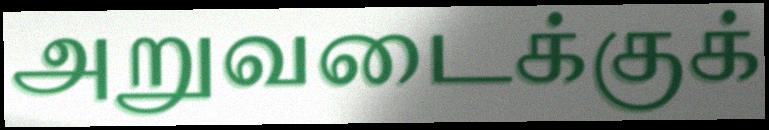
அறுவடைக்குக்